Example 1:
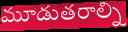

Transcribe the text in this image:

మూడుతరాల్ని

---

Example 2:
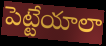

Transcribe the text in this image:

పెట్టేయాలా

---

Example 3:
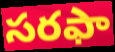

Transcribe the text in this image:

సరఫా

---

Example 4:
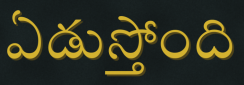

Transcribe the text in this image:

ఏడుస్తోంది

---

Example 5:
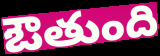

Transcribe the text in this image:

ఔతుంది